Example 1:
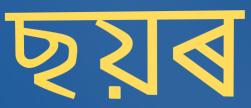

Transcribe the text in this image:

ছয়ৰ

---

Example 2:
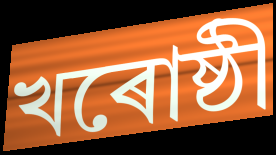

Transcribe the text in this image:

খৰোষ্ঠী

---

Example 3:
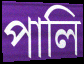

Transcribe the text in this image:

পালি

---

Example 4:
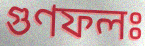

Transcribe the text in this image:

গুণফলঃ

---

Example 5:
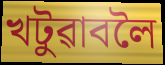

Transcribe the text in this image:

খটুৱাবলৈ